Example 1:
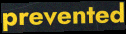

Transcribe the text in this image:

prevented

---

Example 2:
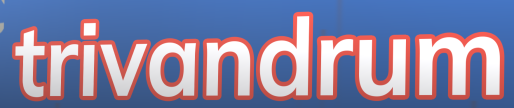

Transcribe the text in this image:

trivandrum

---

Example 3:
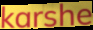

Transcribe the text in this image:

karshe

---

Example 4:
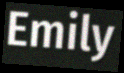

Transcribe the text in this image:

Emily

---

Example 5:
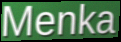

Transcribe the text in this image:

Menka